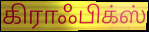
கிராஃபிக்ஸ்